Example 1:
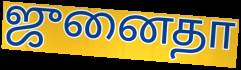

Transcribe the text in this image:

ஜுனைதா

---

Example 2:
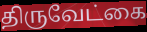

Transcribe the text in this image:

திருவேட்கை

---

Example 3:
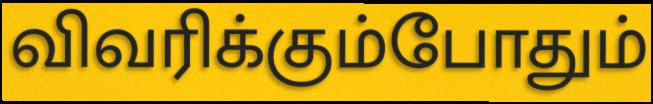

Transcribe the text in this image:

விவரிக்கும்போதும்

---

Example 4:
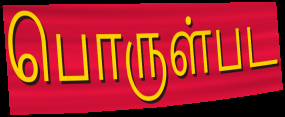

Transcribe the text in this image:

பொருள்பட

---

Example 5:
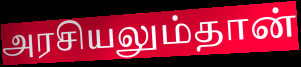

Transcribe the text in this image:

அரசியலும்தான்